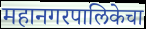
महानगरपालिकेचा